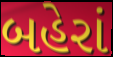
બહેરાં